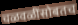
चळवळींसोबतच